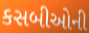
કસબીઓની